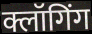
क्लॉगिंग